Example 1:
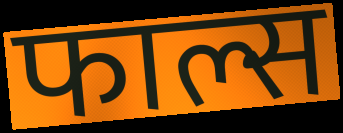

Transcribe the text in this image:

फाल्स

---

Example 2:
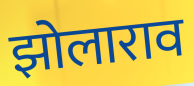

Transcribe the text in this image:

झोलाराव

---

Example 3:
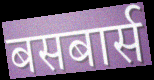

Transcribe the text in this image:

बसबार्स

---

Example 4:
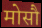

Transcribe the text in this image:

मोसौ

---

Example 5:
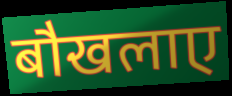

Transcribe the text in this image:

बौखलाए